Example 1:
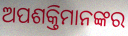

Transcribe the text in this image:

ଅପଶକ୍ତିମାନଙ୍କର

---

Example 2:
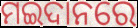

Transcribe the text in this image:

ମଇଦାନରେ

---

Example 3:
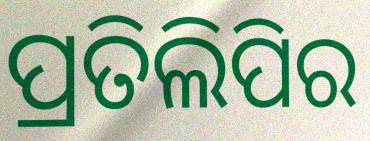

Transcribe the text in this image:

ପ୍ରତିଲିପିର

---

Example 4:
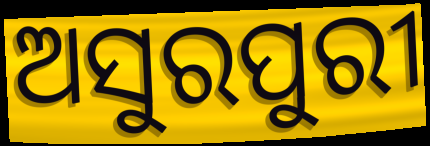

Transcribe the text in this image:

ଅସୁରପୁରୀ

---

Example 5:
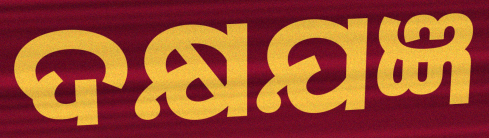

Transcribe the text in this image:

ଦକ୍ଷଯଜ୍ଞ